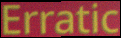
Erratic